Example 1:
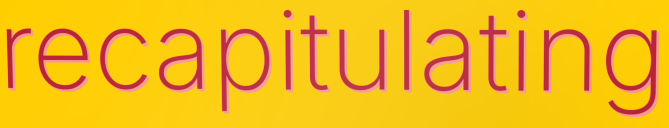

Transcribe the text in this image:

recapitulating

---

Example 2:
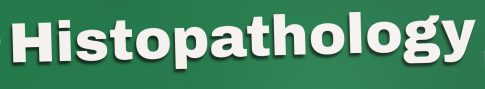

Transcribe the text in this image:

Histopathology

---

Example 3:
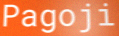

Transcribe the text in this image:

Pagoji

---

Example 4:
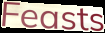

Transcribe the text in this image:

Feasts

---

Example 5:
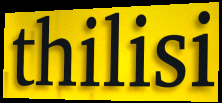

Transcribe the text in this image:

thilisi